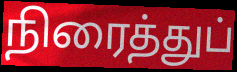
நிரைத்துப்